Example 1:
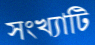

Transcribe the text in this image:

সংখ্যাটি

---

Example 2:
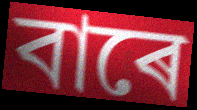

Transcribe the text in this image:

বাৰে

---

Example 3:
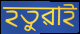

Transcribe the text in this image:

হতুৱাই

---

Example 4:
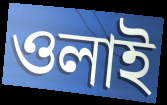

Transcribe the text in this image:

ওলাই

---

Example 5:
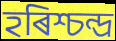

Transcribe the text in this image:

হৰিশ্চন্দ্ৰ